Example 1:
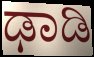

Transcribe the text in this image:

ಢಾಡಿ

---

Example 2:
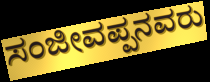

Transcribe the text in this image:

ಸಂಜೀವಪ್ಪನವರು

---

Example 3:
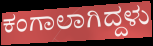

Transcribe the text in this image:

ಕಂಗಾಲಾಗಿದ್ದಳು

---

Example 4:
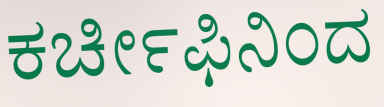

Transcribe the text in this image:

ಕರ್ಚೀಫಿನಿಂದ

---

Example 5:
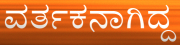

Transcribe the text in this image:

ವರ್ತಕನಾಗಿದ್ದ